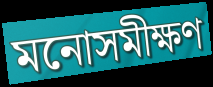
মনোসমীক্ষণ